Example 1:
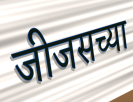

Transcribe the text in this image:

जीजसच्या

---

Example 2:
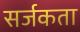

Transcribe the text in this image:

सर्जकता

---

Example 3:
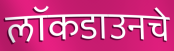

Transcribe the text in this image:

लॉकडाउनचे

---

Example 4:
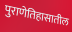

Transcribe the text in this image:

पुराणेतिहासातील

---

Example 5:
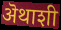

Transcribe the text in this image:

ऄथाशी